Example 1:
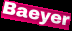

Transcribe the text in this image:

Baeyer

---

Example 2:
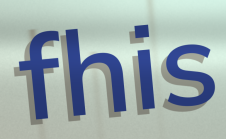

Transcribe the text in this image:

fhis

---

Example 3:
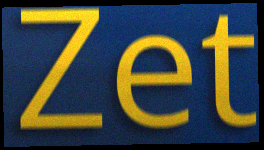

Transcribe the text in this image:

Zet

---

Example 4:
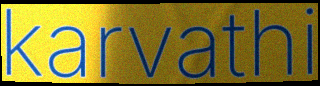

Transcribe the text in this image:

karvathi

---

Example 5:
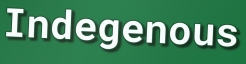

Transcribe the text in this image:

Indegenous